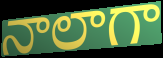
నాలాగా